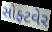
સોફ્ટવેર